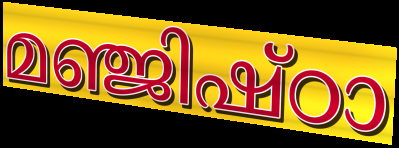
മഞ്ജിഷ്ഠാ